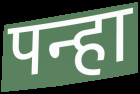
पन्हा